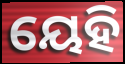
ୟେହି